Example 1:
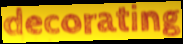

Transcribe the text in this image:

decorating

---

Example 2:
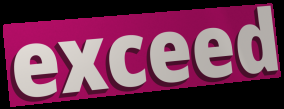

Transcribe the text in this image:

exceed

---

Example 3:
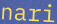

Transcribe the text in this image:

nari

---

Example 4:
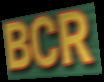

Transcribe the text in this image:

BCR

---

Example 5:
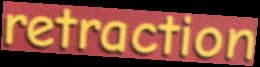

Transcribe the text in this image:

retraction